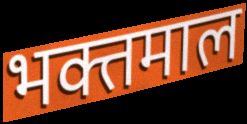
भक्तमाल